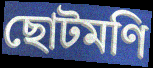
ছোটমণি